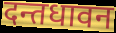
दन्तधावन